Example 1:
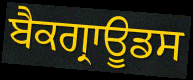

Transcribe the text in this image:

ਬੈਕਗ੍ਰਾਊਡਸ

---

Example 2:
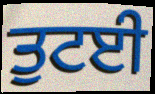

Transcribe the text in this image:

ਤੁਟਈ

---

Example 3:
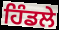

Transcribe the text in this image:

ਹਿੰਡਲੇ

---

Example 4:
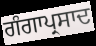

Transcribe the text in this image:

ਗੰਗਾਪ੍ਰਸਾਦ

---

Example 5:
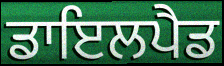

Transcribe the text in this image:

ਡਾਇਲਪੈਡ